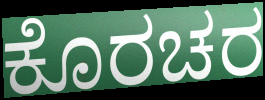
ಕೊರಚರ